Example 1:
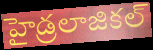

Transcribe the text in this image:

హైడ్రలాజికల్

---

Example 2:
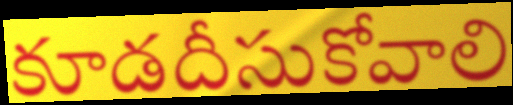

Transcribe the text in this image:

కూడదీసుకోవాలి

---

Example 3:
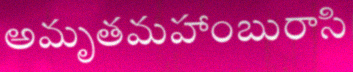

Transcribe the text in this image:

అమృతమహాంబురాసి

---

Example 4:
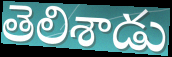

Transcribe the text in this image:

తెలిశాడు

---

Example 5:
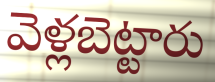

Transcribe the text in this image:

వెళ్లబెట్టారు